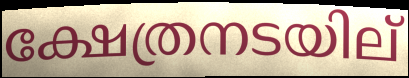
ക്ഷേത്രനടയില്